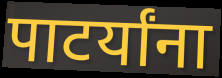
पाटर्यांना